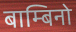
बाम्बिनो